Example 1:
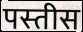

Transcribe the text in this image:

पस्तीस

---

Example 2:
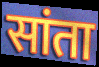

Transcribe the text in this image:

सांता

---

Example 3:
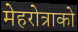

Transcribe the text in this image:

मेहरोत्राको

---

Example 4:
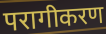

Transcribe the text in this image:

परागीकरण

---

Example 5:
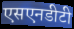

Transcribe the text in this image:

एसएनडीटी